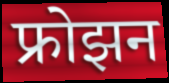
फ्रोझन